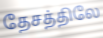
தேசத்திலே